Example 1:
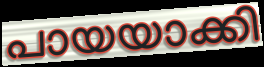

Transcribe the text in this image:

പായയാക്കി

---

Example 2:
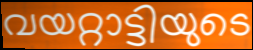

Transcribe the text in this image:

വയറ്റാട്ടിയുടെ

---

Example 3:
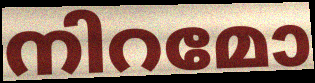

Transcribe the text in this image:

നിറമോ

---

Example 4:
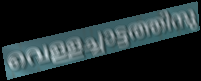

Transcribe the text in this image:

വെള്ളച്ചാട്ടത്തിനു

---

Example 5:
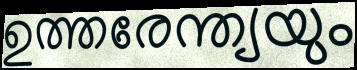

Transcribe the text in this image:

ഉത്തരേന്ത്യയും